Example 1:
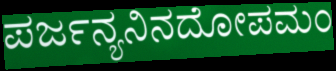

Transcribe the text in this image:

ಪರ್ಜನ್ಯನಿನದೋಪಮಂ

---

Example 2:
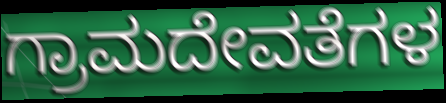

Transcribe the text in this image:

ಗ್ರಾಮದೇವತೆಗಳ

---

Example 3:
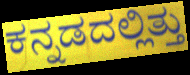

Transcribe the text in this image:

ಕನ್ನಡದಲ್ಲಿತ್ತು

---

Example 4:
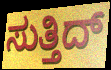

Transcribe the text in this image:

ಸುತ್ತಿದ್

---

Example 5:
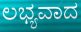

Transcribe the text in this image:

ಲಭ್ಯವಾದ